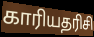
காரியதரிசி